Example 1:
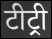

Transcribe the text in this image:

टीट्री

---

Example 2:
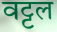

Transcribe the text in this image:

वट्टल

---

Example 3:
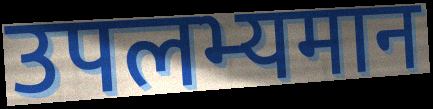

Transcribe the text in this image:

उपलभ्यमान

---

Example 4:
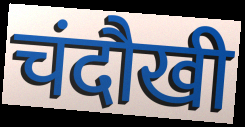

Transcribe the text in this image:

चंदौखी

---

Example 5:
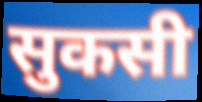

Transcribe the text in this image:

सुकसी